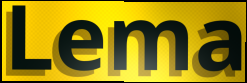
Lema